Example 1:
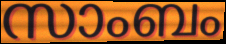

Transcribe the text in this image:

സാംബം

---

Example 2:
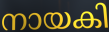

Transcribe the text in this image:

നായകി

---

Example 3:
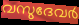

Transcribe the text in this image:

വസുദേവർ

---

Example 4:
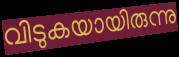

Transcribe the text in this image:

വിടുകയായിരുന്നു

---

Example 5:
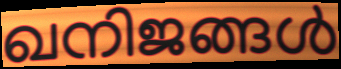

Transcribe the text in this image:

ഖനിജങ്ങൾ